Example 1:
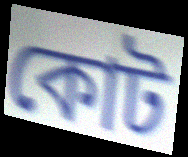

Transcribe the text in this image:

কোট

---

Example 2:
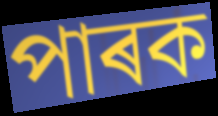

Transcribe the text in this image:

পাৰক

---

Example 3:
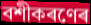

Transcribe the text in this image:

বশীকৰণেৰ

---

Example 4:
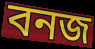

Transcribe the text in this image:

বনজ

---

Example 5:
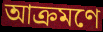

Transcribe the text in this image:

আক্ৰমণে